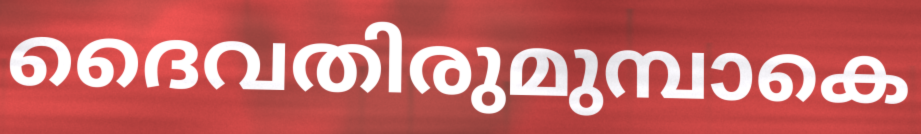
ദൈവതിരുമുമ്പാകെ